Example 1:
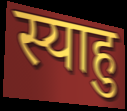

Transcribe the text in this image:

स्याहु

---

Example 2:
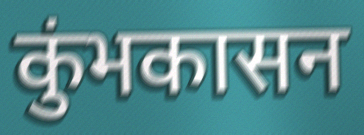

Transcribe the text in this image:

कुंभकासन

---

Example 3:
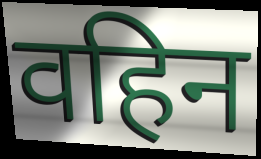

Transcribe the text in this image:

वहिन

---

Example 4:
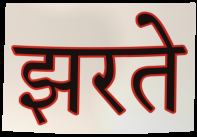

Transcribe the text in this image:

झरते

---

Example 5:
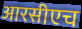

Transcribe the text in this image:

आरसीएच